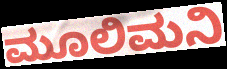
ಮೂಲಿಮನಿ